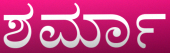
ಶರ್ಮಾ